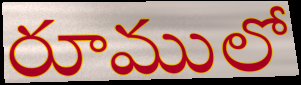
రూములో